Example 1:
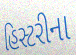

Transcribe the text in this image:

હિસ્ટરીના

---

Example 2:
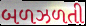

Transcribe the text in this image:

બળઝળતી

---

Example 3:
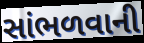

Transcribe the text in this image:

સાંભળવાની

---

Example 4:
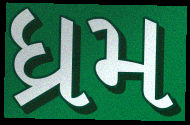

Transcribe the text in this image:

ધ્રમ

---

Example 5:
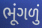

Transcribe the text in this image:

ભૂંગળું